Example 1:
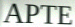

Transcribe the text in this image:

APTE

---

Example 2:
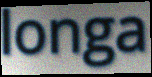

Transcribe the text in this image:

longa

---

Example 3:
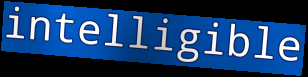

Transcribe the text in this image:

intelligible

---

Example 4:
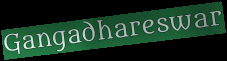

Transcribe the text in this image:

Gangadhareswar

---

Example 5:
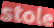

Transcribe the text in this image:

stole